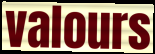
valours